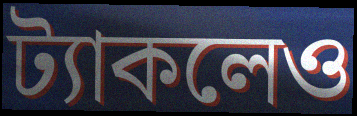
ট্যাকলেও